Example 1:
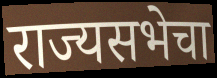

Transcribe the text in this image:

राज्यसभेचा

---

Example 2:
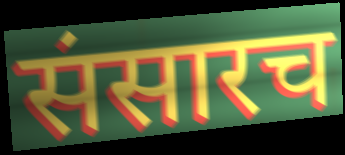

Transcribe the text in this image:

संसारच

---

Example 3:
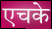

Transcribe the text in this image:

एचके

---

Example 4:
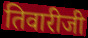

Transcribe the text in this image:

तिवारीजी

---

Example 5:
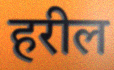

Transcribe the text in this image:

हरील